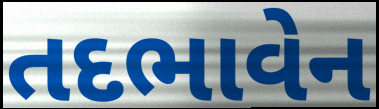
તદભાવેન